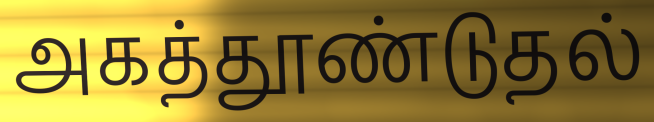
அகத்தூண்டுதல்